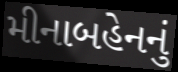
મીનાબહેનનું